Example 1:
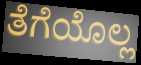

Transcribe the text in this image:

ತೆಗೆಯೊಲ್ಲ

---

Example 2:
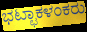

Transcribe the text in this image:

ಭಟ್ಟಾಕಳಂಕರು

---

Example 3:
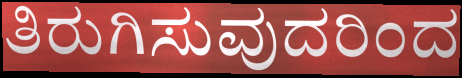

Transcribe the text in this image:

ತಿರುಗಿಸುವುದರಿಂದ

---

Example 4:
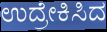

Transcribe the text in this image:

ಉದ್ರೇಕಿಸಿದ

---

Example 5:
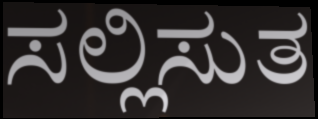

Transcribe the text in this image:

ಸಲ್ಲಿಸುತ